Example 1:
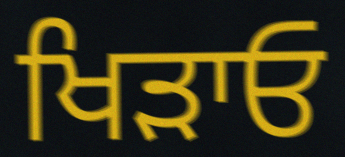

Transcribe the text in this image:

ਖਿੜਾਓ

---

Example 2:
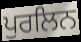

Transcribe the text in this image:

ਪੁਰਲਿਨ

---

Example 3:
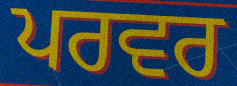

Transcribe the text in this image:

ਪਰਵਰ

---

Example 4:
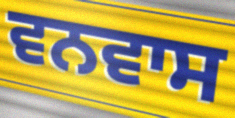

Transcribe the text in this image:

ਵਨਵਾਸ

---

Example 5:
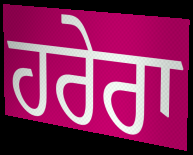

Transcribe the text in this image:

ਹਰੇਰਾ